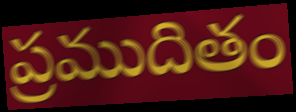
ప్రముదితం